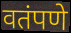
वतंपणे